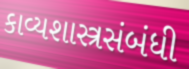
કાવ્યશાસ્ત્રસંબંધી